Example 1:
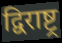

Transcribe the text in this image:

द्विराष्ट्र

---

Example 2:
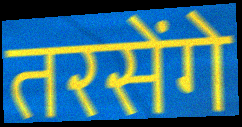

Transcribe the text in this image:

तरसेंगे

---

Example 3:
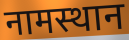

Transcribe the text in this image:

नामस्थान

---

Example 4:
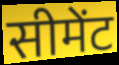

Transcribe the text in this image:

सीमेंट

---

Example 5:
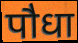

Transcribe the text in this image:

पौधा